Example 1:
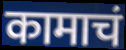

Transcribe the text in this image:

कामाचं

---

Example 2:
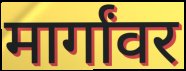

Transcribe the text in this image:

मार्गांवर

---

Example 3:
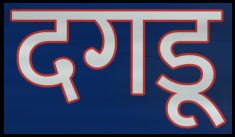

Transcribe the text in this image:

दगडू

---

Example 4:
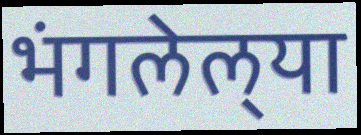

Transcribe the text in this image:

भंगलेल्या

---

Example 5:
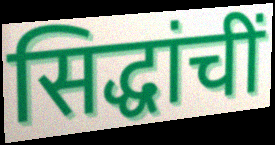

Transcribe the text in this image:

सिद्धांचीं